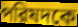
পরিষদকে